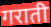
गराती